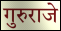
गुरुराजे